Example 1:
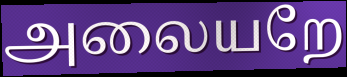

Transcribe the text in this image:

அலையறே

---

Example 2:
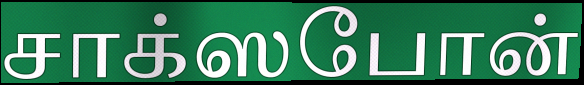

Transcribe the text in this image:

சாக்ஸபோன்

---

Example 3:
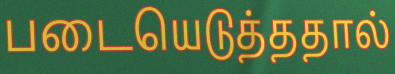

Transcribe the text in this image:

படையெடுத்ததால்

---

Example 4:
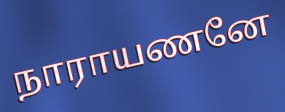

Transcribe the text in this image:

நாராயணனே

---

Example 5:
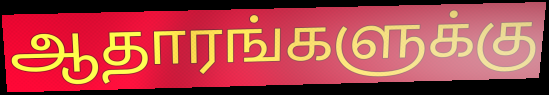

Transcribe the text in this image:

ஆதாரங்களுக்கு